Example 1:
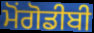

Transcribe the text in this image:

ਮੋਂਗੋਡੀਬੀ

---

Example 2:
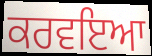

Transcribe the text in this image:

ਕਰਵਇਆ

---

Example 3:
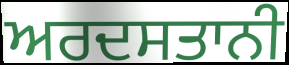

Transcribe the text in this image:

ਅਰਦਸਤਾਨੀ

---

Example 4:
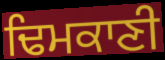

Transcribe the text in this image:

ਢਿਮਕਾਣੀ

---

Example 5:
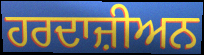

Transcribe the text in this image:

ਹਰਦਾਜ਼ੀਅਨ